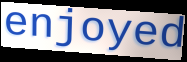
enjoyed